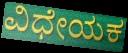
ವಿಧೇಯಕ